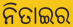
ନିତାଇର